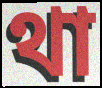
থা